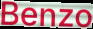
Benzo